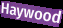
Haywood